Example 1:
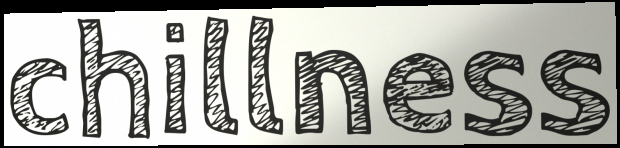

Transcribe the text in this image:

chillness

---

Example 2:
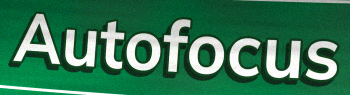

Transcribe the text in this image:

Autofocus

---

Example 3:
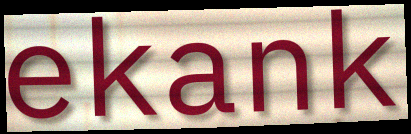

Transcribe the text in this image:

ekank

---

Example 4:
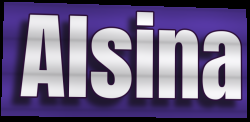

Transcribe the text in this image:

Alsina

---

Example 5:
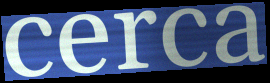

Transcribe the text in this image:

cerca